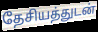
தேசியத்துடன்